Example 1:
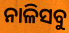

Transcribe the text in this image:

ନାଳିସବୁ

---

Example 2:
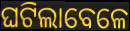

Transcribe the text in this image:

ଘଟିଲାବେଳେ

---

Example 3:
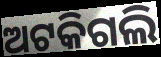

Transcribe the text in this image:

ଅଟକିଗଲି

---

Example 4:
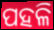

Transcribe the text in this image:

ପହଳି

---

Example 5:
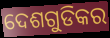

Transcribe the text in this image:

ଦେଶଗୁଡିକର